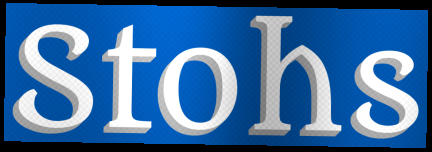
Stohs